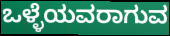
ಒಳ್ಳೆಯವರಾಗುವ